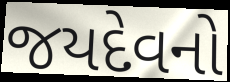
જયદેવનો